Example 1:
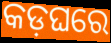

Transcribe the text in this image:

କଡ଼ଘରେ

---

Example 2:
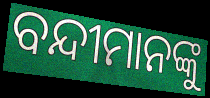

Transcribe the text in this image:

ବନ୍ଦୀମାନଙ୍କୁ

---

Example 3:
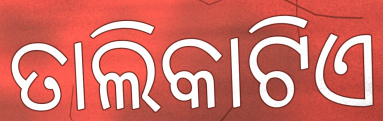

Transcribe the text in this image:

ତାଲିକାଟିଏ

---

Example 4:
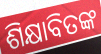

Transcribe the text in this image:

ଶିକ୍ଷାବିତଙ୍କ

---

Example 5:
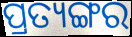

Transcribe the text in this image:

ପ୍ରତ୍ୟଙ୍ଗର